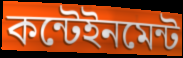
কন্টেইনমেন্ট